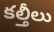
కల్తీలు